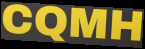
CQMH